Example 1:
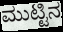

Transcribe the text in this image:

ಮುಟ್ಟಿನ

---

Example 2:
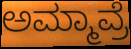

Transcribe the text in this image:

ಅಮ್ಮಾವ್ರೆ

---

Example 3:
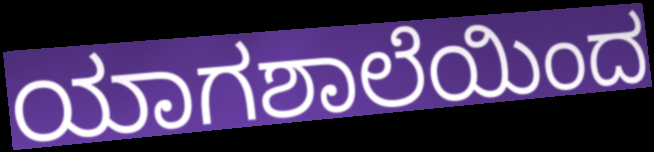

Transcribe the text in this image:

ಯಾಗಶಾಲೆಯಿಂದ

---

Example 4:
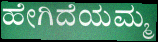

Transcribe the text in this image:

ಹೇಗಿದೆಯಮ್ಮ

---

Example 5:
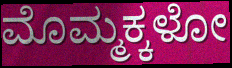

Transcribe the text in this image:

ಮೊಮ್ಮಕ್ಕಳೋ